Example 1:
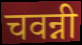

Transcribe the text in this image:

चवन्नी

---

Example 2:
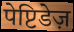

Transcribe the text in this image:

पेप्टिडेज़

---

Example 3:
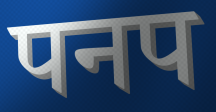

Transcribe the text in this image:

पनप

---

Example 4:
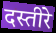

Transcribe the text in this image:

दस्तीरे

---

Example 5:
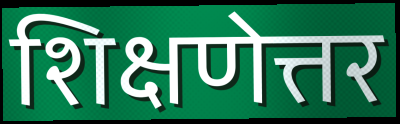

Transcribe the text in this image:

शिक्षणेत्तर